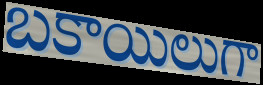
బకాయిలుగా